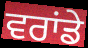
ਵਰਾਂਡੇ